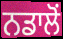
ਨਡਾਲੋਂ